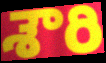
శౌరి